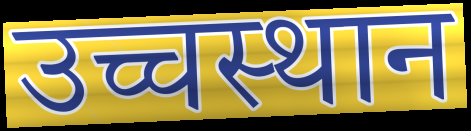
उच्चस्थान